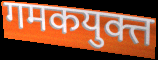
गमकयुक्त